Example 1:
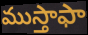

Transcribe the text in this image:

ముస్తాఫా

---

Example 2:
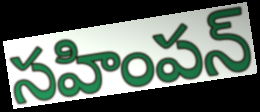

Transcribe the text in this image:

సహింపన్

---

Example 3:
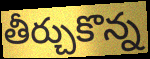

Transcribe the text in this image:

తీర్చుకొన్న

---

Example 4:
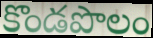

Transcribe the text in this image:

కొండపొలం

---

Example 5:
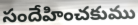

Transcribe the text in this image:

సందేహించకుము